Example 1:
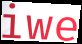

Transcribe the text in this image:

iwe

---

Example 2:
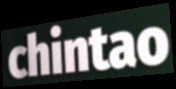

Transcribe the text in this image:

chintao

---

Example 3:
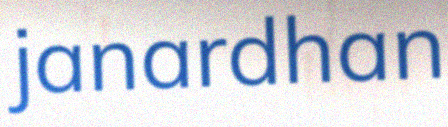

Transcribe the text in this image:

janardhan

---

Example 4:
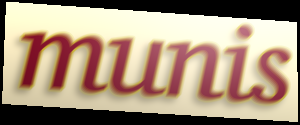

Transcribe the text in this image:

munis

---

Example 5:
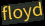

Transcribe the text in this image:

floyd